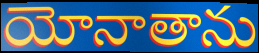
యోనాతాను